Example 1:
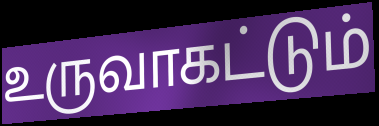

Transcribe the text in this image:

உருவாகட்டும்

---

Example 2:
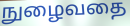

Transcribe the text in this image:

நுழைவதை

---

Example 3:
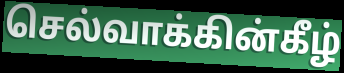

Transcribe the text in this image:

செல்வாக்கின்கீழ்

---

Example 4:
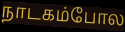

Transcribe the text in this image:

நாடகம்போல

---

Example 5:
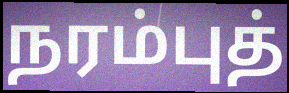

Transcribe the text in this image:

நரம்புத்